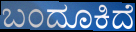
ಬಂದೂಕಿದೆ